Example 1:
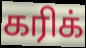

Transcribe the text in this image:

கரிக்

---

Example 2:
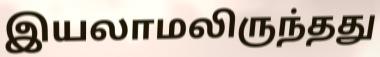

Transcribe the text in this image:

இயலாமலிருந்தது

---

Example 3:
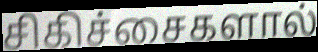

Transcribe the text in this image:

சிகிச்சைகளால்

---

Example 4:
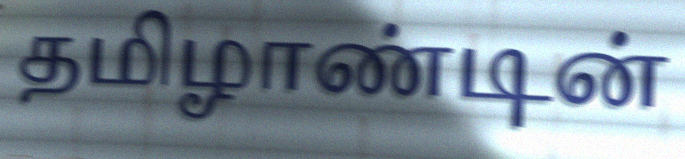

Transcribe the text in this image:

தமிழாண்டின்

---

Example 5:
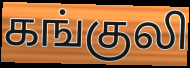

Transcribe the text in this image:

கங்குலி